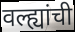
वल्ह्यांची